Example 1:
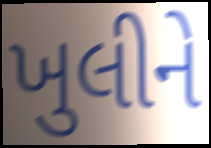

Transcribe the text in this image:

ખુલીને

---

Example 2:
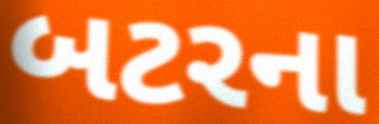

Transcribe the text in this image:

બટરના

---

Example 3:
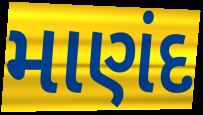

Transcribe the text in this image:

માણંદ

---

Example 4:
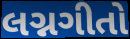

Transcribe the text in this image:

લગ્નગીતો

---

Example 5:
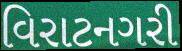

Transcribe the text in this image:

વિરાટનગરી